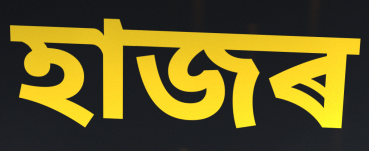
হাজৰ